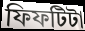
ফিফটিটা